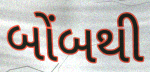
બોંબથી